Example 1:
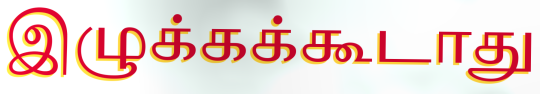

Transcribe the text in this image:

இழுக்கக்கூடாது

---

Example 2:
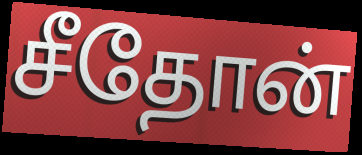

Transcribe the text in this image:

சீதோன்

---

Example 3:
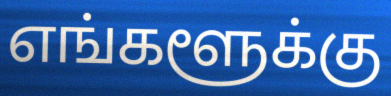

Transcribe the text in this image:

எங்களூக்கு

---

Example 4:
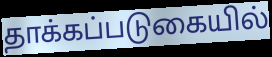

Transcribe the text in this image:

தாக்கப்படுகையில்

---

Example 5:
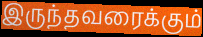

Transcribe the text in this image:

இருந்தவரைக்கும்